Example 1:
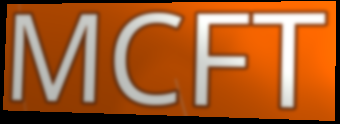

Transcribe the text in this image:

MCFT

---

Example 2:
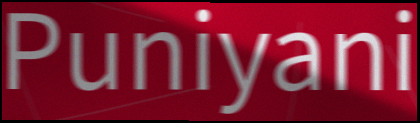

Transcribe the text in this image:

Puniyani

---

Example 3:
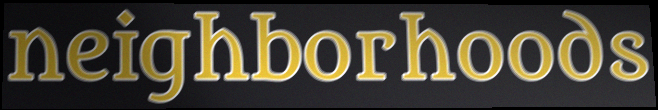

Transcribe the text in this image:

neighborhoods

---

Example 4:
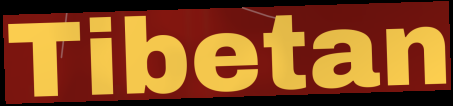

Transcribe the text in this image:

Tibetan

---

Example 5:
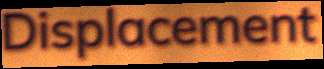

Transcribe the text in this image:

Displacement